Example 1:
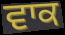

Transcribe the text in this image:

ਵਾਕ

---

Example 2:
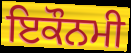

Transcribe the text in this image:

ਇਕੌਨਮੀ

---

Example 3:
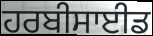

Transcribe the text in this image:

ਹਰਬੀਸਾਈਡ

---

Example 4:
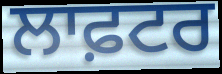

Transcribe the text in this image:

ਲਾਫ਼ਟਰ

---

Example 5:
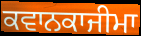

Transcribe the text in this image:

ਕਵਾਨਕਾਜੀਮਾ